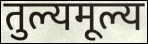
तुल्यमूल्य